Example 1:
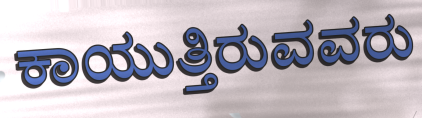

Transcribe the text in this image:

ಕಾಯುತ್ತಿರುವವರು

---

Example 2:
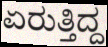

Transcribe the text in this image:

ಏರುತ್ತಿದ್ದ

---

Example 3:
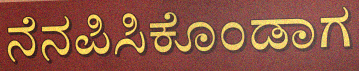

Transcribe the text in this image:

ನೆನಪಿಸಿಕೊಂಡಾಗ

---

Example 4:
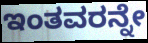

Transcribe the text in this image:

ಇಂತವರನ್ನೇ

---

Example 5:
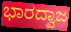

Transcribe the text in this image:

ಭಾರದ್ವಾಜ